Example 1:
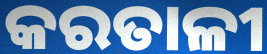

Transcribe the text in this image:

କରତାଳୀ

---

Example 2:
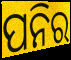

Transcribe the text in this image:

ପନିର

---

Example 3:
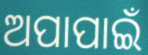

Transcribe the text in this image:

ଅପାପାଇଁ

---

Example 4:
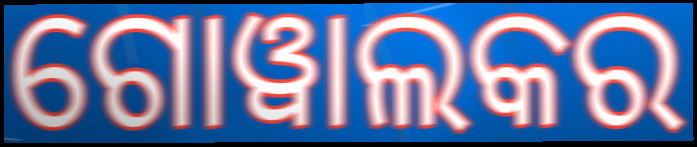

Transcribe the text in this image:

ଗୋୱାଲକର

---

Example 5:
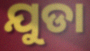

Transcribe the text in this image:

ଯୁଡା